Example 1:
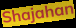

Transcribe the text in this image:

Shajahan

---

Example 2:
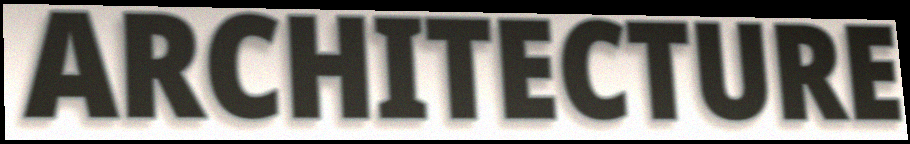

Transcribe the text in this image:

ARCHITECTURE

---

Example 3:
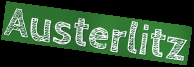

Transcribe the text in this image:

Austerlitz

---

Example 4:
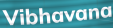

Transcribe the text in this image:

Vibhavana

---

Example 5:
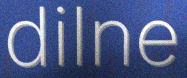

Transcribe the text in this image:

dilne